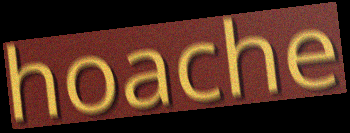
hoache